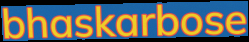
bhaskarbose